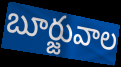
బూర్జువాల